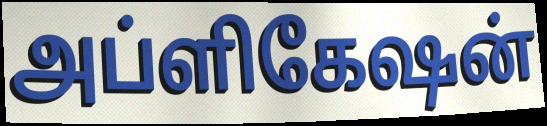
அப்ளிகேஷன்